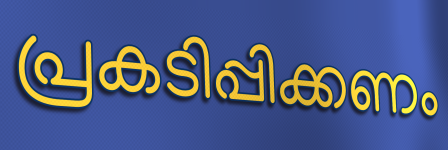
പ്രകടിപ്പിക്കണം